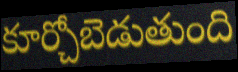
కూర్చోబెడుతుంది